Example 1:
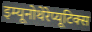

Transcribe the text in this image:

इम्यूनोथेरेप्यूटिक्स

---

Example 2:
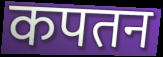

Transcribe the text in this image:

कपतन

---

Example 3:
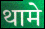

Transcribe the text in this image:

थामे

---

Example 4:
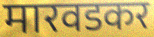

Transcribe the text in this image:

मारवडकर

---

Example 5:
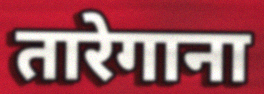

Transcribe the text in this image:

तारेगाना